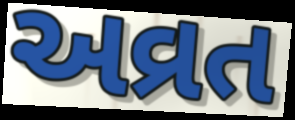
અવ્રત